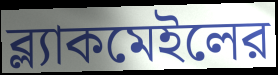
ব্ল্যাকমেইলের